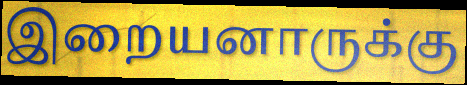
இறையனாருக்கு